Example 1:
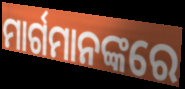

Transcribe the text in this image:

ମାର୍ଗମାନଙ୍କରେ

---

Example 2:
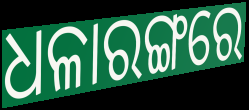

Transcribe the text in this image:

ଧଳାରଙ୍ଗରେ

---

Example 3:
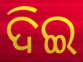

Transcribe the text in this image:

ଦିଇ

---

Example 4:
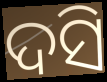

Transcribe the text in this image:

ଦସି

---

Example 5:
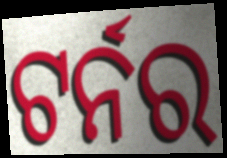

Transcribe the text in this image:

ଟର୍ନର